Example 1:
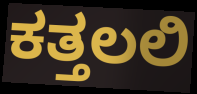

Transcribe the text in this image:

ಕತ್ತಲಲಿ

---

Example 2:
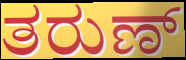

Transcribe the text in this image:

ತರುಣ್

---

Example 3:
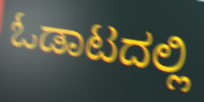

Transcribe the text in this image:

ಓಡಾಟದಲ್ಲಿ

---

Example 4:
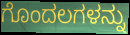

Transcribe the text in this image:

ಗೊಂದಲಗಳನ್ನು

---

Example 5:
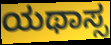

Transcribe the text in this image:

ಯಥಾಸ್ಸ